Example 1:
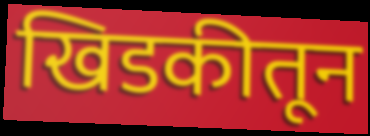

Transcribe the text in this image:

खिडकीतून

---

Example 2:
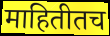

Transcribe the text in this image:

माहितीतच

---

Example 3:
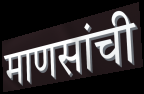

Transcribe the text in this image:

माणसांची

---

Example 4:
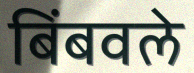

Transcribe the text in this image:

बिंबवले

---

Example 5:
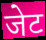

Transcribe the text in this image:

जेट